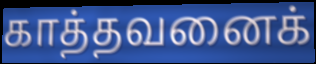
காத்தவனைக்